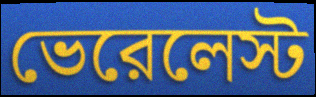
ভেরেলেস্ট